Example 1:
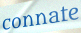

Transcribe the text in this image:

connate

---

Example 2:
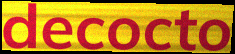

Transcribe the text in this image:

decocto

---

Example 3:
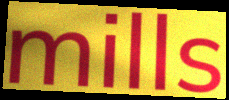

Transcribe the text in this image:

mills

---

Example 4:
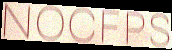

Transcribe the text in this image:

NOCFPS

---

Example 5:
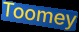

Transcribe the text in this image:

Toomey